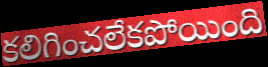
కలిగించలేకపోయింది